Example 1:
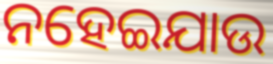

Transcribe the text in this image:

ନହେଇଯାଉ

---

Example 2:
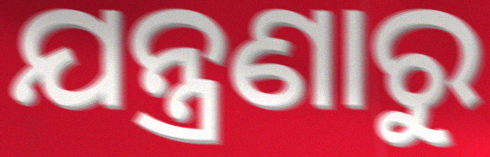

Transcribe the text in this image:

ଯନ୍ତ୍ରଣାରୁ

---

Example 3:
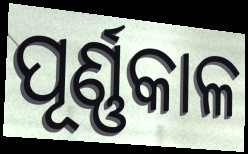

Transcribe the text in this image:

ପୂର୍ଣ୍ଣକାଳ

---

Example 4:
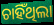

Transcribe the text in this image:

ଚାହିଁଥିଲା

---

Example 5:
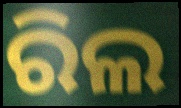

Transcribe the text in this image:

ରିଲ